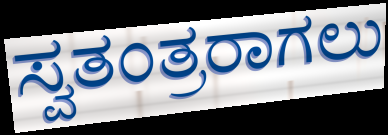
ಸ್ವತಂತ್ರರಾಗಲು